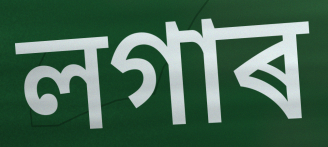
লগাৰ